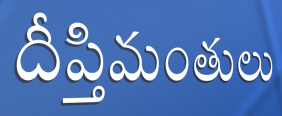
దీప్తిమంతులు